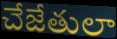
చేజేతులా